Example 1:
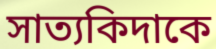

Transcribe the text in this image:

সাত্যকিদাকে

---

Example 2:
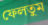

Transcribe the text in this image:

ফেলতুম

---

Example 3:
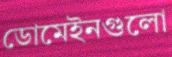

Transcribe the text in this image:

ডোমেইনগুলো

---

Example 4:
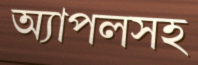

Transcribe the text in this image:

অ্যাপলসহ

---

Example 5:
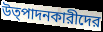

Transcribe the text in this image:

উত্পাদনকারীদের